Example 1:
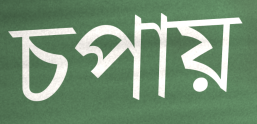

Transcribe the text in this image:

চপায়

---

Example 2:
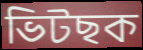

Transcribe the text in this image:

ভিটছক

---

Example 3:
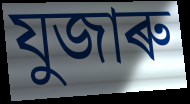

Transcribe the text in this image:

যুজাৰু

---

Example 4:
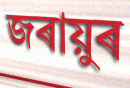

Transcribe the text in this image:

জৰায়ুৰ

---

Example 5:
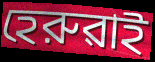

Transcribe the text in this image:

হেৰুৱাই